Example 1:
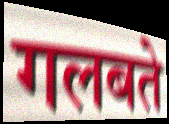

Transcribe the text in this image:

गलबते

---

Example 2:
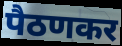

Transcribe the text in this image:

पैठणकर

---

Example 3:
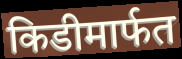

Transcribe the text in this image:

किडीमार्फत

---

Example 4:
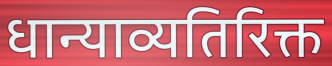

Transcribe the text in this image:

धान्याव्यतिरिक्त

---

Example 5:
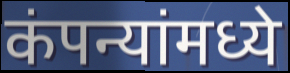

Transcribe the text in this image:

कंपन्यांमध्ये